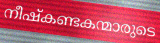
നീഷ്കണ്ടകന്മാരുടെ